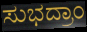
ಸುಭದ್ರಾಂ